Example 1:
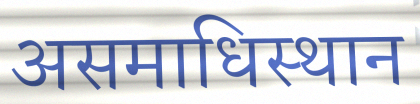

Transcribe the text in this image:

असमाधिस्थान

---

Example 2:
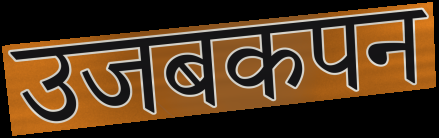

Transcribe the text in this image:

उजबकपन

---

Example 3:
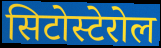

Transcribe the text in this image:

सिटोस्टेरोल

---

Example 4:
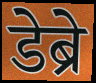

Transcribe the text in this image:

डेब्रे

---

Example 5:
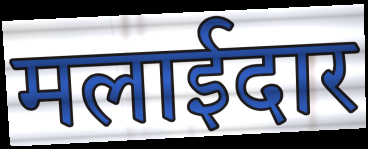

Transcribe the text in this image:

मलाईदार